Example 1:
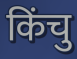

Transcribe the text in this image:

किंचु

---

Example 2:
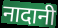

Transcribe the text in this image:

नादानी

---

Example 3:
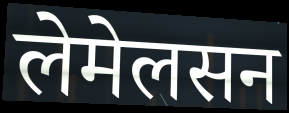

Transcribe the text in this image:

लेमेलसन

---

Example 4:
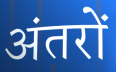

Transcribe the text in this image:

अंतरों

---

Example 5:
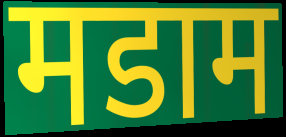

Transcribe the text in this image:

मडाम